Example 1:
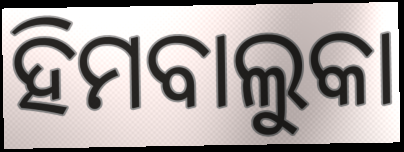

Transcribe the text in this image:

ହିମବାଲୁକା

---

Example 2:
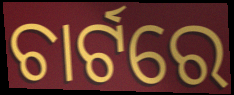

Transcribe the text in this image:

ଚାର୍ଟରେ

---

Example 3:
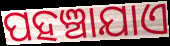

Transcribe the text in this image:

ପହଞ୍ଚାଯାଏ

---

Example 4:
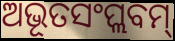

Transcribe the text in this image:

ଅଭୂତସଂପ୍ଲବମ୍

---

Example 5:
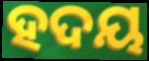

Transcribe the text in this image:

ହଦୟ